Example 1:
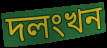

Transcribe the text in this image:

দলংখন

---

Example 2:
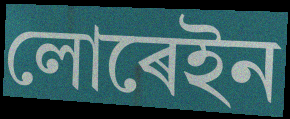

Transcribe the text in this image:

লোৰেইন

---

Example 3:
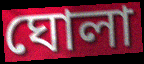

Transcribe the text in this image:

ঘোলা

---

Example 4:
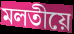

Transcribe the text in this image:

মলতীয়ে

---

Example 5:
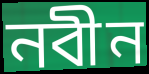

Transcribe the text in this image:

নবীন